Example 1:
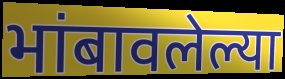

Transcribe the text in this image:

भांबावलेल्या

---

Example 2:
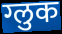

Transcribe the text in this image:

ग्लुक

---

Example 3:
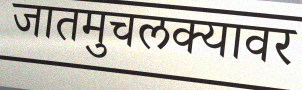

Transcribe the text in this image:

जातमुचलक्यावर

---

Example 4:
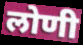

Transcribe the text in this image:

लोणी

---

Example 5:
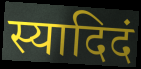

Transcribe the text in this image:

स्यादिदं